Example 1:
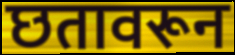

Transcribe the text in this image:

छतावरून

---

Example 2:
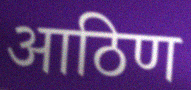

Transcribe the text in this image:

आठिण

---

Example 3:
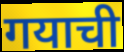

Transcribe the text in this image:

गयाची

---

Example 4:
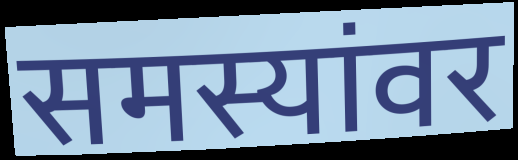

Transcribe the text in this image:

समस्यांवर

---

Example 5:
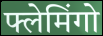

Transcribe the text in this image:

फ्लेमिंगो